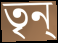
তৃন্